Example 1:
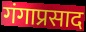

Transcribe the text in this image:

गंगाप्रसाद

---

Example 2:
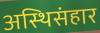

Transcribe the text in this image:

अस्थिसंहार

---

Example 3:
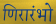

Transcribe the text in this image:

णिरारंभो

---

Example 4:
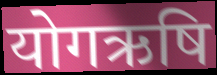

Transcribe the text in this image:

योगऋषि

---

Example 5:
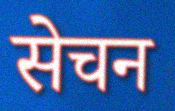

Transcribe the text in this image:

सेचन